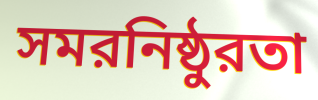
সমরনিষ্ঠুরতা